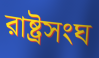
রাষ্ট্রসংঘ